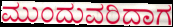
ಮುಂದುವರಿದಾಗ